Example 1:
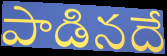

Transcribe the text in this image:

పాడినదే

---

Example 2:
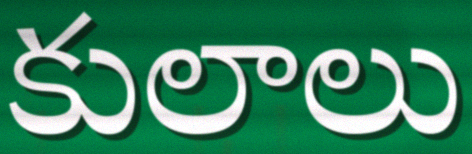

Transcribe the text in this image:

కులాలు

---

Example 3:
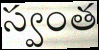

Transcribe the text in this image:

స్వంత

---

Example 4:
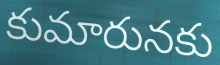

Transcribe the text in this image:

కుమారునకు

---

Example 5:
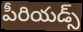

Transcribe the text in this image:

పీరియడ్స్